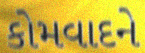
કોમવાદને